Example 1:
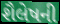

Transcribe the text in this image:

શૈલેષની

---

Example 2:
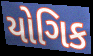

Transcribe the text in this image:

યોગિક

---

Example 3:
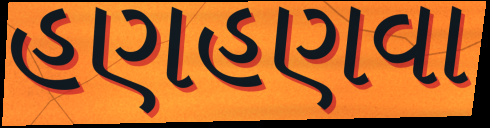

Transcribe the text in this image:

હણહણવા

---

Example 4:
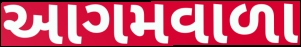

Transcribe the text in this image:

આગમવાળા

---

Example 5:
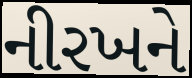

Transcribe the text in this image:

નીરખને